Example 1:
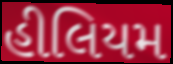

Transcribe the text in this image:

હીલિયમ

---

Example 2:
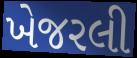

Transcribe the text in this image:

ખેજરલી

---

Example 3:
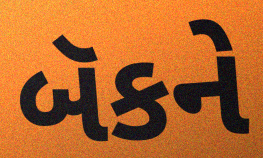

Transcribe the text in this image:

બૅકને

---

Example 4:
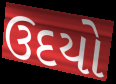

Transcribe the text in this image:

ઉદયો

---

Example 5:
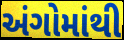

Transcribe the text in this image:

અંગોમાંથી